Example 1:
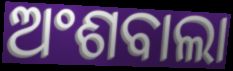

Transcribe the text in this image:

ଅଂଶବାଲା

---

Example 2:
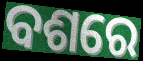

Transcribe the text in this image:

ବଶରେ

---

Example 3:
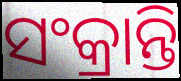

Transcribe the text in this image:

ସଂକ୍ରାନ୍ତି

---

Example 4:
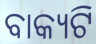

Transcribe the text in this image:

ବାକ୍ୟଟି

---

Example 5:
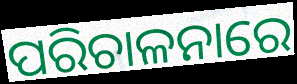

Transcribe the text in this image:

ପରିଚାଳନାରେ